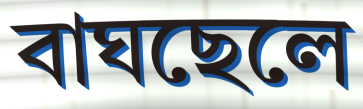
বাঘছেলে